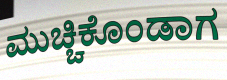
ಮುಚ್ಚಿಕೊಂಡಾಗ